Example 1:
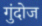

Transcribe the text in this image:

गुंदोज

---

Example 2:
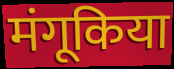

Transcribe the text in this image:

मंगूकिया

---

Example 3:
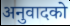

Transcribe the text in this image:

अनुवादको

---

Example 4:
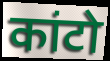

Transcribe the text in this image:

कांटो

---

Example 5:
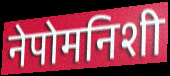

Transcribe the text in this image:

नेपोमनिशी